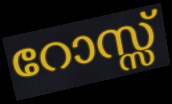
റോസ്സ്